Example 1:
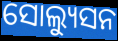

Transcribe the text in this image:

ସୋଲ୍ୟୁସନ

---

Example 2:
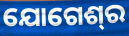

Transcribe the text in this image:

ଯୋଗେଶ୍‍ର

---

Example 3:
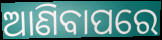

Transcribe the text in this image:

ଆଣିବାପରେ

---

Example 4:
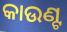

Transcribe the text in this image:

କାଉଣ୍ଟ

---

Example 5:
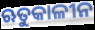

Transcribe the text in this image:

ଋତୁକାଳୀନ